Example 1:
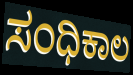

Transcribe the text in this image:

ಸಂಧಿಕಾಲ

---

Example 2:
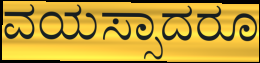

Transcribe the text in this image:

ವಯಸ್ಸಾದರೂ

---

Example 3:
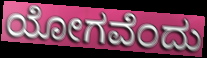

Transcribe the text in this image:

ಯೋಗವೆಂದು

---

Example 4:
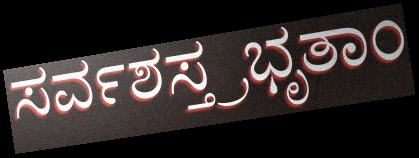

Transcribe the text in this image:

ಸರ್ವಶಸ್ತ್ರಭೃತಾಂ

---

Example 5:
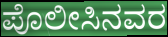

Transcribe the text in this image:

ಪೊಲೀಸಿನವರ